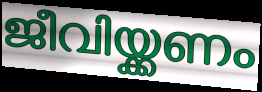
ജീവിയ്ക്കണം